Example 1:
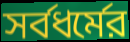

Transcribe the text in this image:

সর্বধর্মের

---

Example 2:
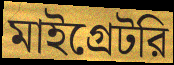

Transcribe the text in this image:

মাইগ্রেটরি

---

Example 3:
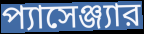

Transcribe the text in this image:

প্যাসেঞ্জ্যার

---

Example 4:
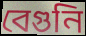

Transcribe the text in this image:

বেগুনি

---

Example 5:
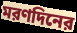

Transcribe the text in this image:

মরণদিনের